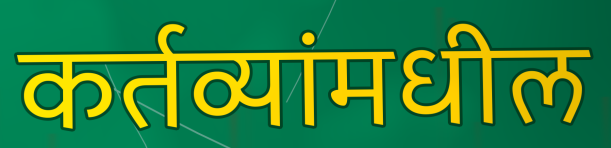
कर्तव्यांमधील